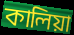
কালিয়া